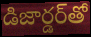
డిజార్డర్‌తో